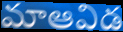
మాఆవిడ